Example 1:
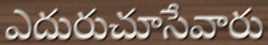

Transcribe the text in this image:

ఎదురుచూసేవారు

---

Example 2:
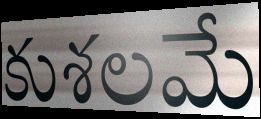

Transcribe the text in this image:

కుశలమే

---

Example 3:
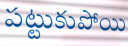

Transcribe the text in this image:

పట్టుకుపోయి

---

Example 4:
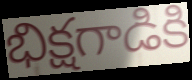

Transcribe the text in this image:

భిక్షగాడికి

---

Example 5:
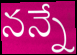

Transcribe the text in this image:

నన్నే